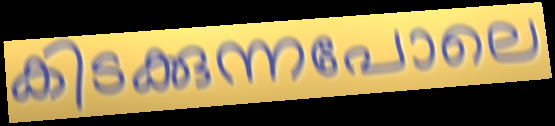
കിടക്കുന്നപോലെ